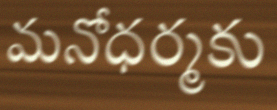
మనోధర్మకు